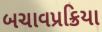
બચાવપ્રક્રિયા